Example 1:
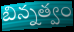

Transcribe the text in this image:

బిన్నత్వం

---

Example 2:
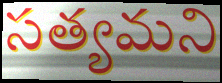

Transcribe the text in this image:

సత్యమని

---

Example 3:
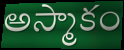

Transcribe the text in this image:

అస్మాకం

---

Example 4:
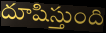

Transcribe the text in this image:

దూషిస్తుంది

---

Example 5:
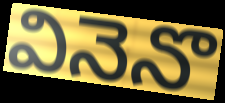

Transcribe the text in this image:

వినెనొ